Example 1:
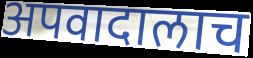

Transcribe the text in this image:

अपवादालाच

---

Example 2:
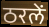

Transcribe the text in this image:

ठरलें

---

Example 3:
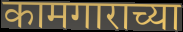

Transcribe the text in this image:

कामगाराच्या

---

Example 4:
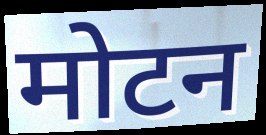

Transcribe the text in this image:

मोटन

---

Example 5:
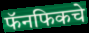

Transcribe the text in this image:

फॅनफिकचे